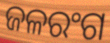
ଜଳରଂଗ